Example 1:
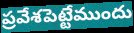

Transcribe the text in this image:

ప్రవేశపెట్టేముందు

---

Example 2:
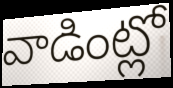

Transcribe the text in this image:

వాడింట్లో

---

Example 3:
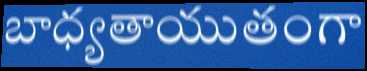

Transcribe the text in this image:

బాధ్యతాయుతంగా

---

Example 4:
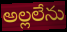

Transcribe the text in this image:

అల్లలేను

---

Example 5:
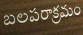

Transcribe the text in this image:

బలపరాక్రమం